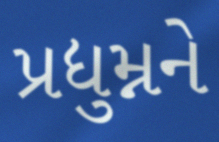
પ્રદ્યુમ્નને